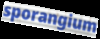
sporangium